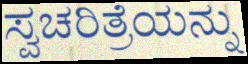
ಸ್ವಚರಿತ್ರೆಯನ್ನು